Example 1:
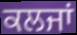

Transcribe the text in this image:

ਕਲਜਾਂ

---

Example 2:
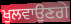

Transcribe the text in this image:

ਖੁਲਵਾਉਣਗੇ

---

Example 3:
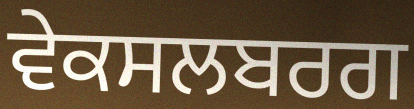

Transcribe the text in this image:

ਵੇਕਸਲਬਰਗ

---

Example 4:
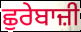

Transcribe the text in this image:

ਛੁਰੇਬਾਜ਼ੀ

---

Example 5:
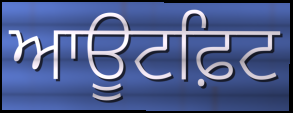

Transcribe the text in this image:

ਆਊਟਫ਼ਿਟ